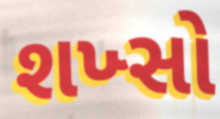
શખ્સો